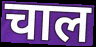
चाल